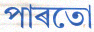
পাৰতো